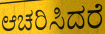
ಆಚರಿಸಿದರೆ